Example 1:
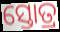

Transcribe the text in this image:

ସ୍ତୋତ୍ର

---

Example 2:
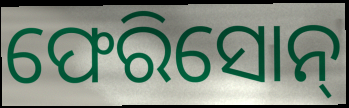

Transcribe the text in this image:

ଫେରିସୋନ୍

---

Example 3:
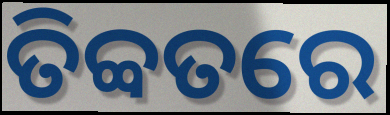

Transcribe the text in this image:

ତିବ୍ବତରେ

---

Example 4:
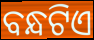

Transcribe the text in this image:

ବନ୍ଧଟିଏ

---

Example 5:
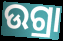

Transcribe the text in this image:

ଉଗ୍ରା